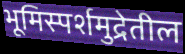
भूमिस्पर्शमुद्रेतील